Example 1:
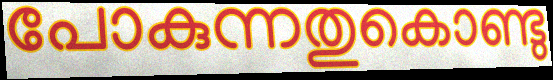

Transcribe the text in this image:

പോകുന്നതുകൊണ്ടു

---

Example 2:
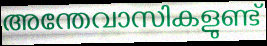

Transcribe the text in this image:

അന്തേവാസികളുണ്ട്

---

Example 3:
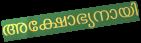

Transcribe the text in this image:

അക്ഷോഭ്യനായി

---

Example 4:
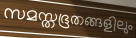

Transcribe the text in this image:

സമസ്തഭൂതങ്ങളിലും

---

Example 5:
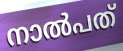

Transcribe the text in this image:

നാൽപത്